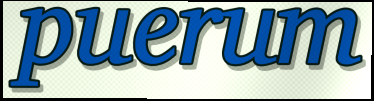
puerum